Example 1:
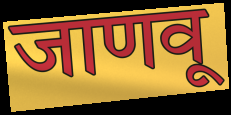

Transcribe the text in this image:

जाणवू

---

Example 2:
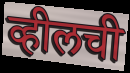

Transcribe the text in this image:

व्हीलची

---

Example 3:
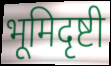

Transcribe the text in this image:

भूमिदृष्टी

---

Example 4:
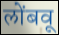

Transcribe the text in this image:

लोंबवू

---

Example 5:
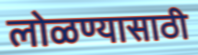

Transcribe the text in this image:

लोळण्यासाठी